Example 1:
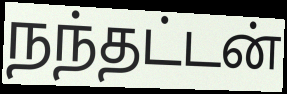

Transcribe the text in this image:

நந்தட்டன்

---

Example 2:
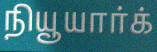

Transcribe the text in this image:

நியூயார்க்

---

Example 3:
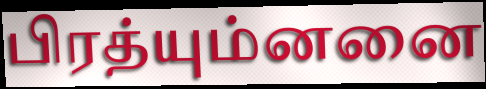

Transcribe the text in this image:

பிரத்யும்னனை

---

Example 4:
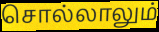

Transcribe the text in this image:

சொல்லாலும்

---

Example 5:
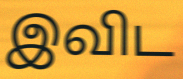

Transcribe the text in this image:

இவிட